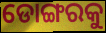
ଡୋଙ୍ଗରକୁ